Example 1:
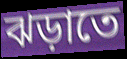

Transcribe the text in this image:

ঝড়াতে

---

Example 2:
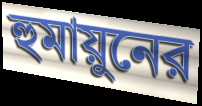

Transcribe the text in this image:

হুমায়ুনের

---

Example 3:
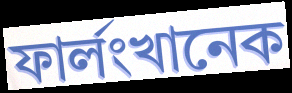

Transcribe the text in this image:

ফার্লংখানেক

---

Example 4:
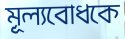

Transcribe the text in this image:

মূল্যবোধকে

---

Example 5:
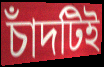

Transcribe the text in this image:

চাঁদটিই